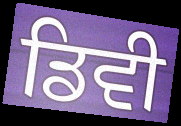
ਡਿਵੀ